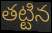
తట్టిన